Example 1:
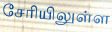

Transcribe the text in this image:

சேரியிலுள்ள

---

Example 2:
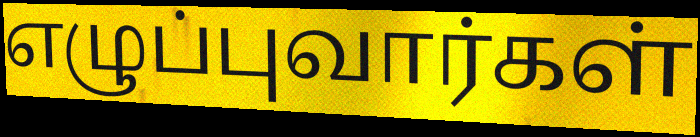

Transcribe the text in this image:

எழுப்புவார்கள்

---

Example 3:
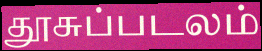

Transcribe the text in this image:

தூசுப்படலம்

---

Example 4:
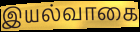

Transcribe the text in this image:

இயல்வாகை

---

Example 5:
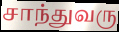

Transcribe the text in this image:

சாந்துவரு